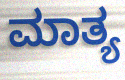
ಮಾತ್ಯ